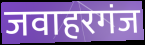
जवाहरगंज